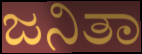
ಜನಿತಾ